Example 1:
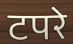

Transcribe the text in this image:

टपरे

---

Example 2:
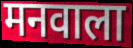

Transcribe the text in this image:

मनवाला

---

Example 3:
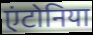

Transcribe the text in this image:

एंटोनिया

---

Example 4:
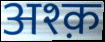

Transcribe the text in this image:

अश्क़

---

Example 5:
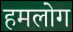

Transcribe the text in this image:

हमलोग